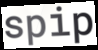
spip